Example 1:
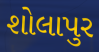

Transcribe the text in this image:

શોલાપુર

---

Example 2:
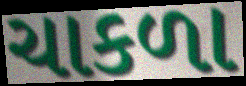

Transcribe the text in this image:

ચાકળા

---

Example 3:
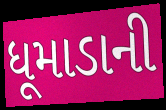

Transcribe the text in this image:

ધૂમાડાની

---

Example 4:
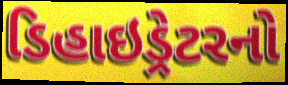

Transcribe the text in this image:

ડિહાઇડ્રેટરનો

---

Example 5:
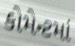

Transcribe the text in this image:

કોમેન્ટમાં